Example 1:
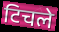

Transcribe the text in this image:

टिचले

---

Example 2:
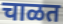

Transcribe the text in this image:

चाळत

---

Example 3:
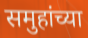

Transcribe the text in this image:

समुहांच्या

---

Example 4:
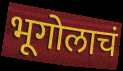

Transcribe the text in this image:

भूगोलाचं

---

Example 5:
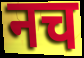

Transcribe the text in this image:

नच